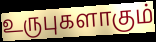
உருபுகளாகும்